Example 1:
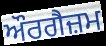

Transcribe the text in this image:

ਔਰਗੈਜ਼ਮ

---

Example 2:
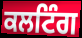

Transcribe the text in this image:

ਕਲਟਿੰਗ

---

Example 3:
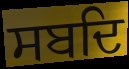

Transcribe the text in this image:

ਸਬਦਿ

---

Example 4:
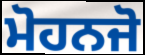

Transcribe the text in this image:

ਮੋਹਨਜੋ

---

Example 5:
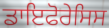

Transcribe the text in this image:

ਡਾਇਫੋਰੇਸਿਸ